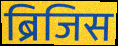
ब्रिजिस